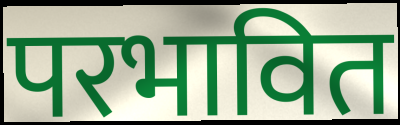
परभावित